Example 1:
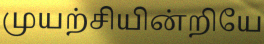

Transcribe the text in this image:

முயற்சியின்றியே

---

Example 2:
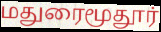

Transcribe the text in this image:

மதுரைமூதூர்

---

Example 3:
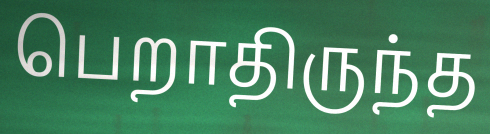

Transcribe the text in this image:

பெறாதிருந்த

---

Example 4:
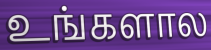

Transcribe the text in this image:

உங்களால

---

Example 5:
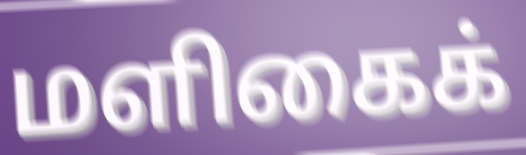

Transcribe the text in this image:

மளிகைக்